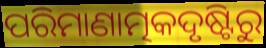
ପରିମାଣାତ୍ମକଦୃଷ୍ଟିରୁ